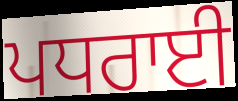
ਪਧਰਾਈ